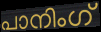
പാനിംഗ്